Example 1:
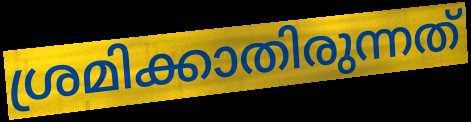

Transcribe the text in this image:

ശ്രമിക്കാതിരുന്നത്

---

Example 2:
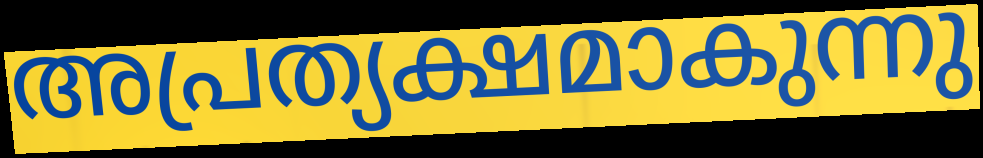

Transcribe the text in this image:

അപ്രത്യക്ഷമാകുന്നു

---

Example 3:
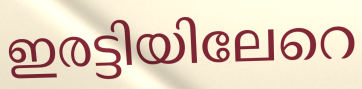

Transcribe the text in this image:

ഇരട്ടിയിലേറെ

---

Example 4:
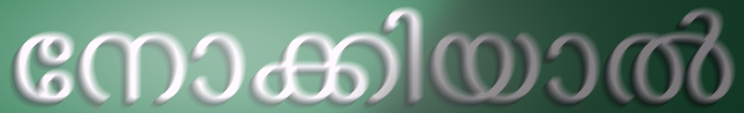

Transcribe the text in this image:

നോക്കിയാൽ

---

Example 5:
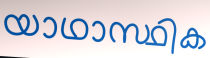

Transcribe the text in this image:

യാഥാസ്ഥിക